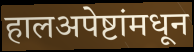
हालअपेष्टांमधून